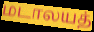
மடாலயத்